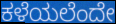
ಕಳೆಯಲೆಂದೇ